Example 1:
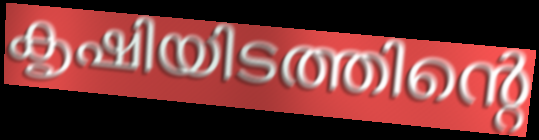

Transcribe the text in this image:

കൃഷിയിടത്തിന്റെ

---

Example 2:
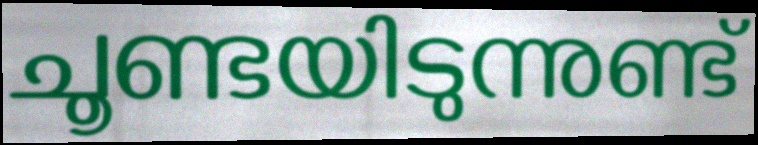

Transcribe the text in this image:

ചൂണ്ടയിടുന്നുണ്ട്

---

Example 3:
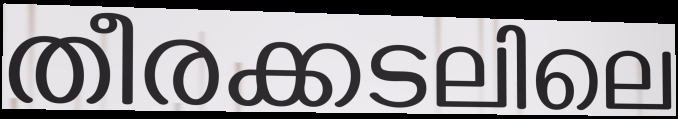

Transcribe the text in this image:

തീരക്കടലിലെ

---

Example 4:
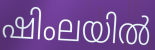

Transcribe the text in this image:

ഷിംലയിൽ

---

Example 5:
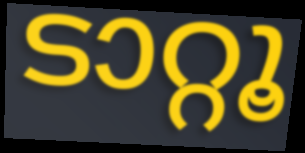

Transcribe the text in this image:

ടാറ്റൂ